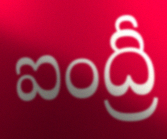
ఐంద్రీ